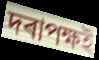
দৰাপক্ষই